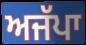
ਅਜੱਪਾ